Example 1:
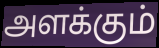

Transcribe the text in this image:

அளக்கும்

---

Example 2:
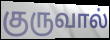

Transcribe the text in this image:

குருவால்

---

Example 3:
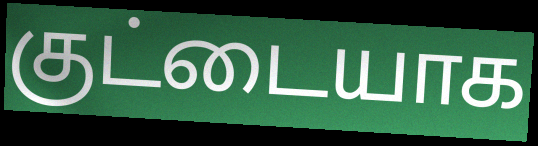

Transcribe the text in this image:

குட்டையாக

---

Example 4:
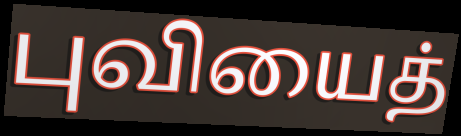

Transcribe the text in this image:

புவியைத்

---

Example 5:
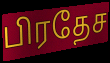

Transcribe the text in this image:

பிரதேச